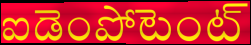
ఐడెంపోటెంట్